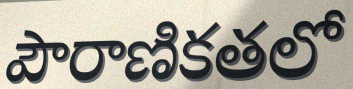
పౌరాణికతలో